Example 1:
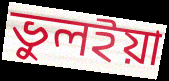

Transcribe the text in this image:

ভুলইয়া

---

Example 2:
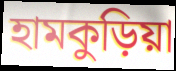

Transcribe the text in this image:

হামকুড়িয়া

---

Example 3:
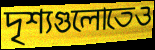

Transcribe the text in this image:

দৃশ্যগুলোতেও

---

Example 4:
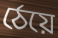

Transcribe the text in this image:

ঠেয়ে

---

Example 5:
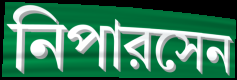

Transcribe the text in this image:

নিপারসেন